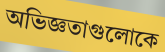
অভিজ্ঞতাগুলোকে